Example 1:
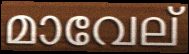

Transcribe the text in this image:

മാവേല്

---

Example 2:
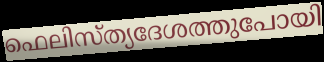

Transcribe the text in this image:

ഫെലിസ്ത്യദേശത്തുപോയി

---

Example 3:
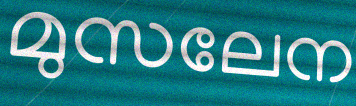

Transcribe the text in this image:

മുസലേന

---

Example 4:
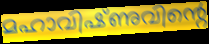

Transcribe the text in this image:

മഹാവിഷ്‌ണുവിന്റെ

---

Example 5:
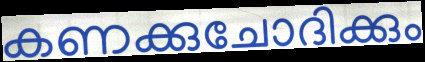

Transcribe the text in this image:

കണക്കുചോദിക്കും